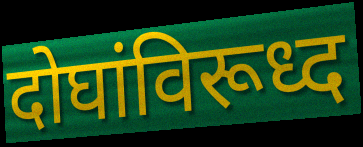
दोघांविरूध्द